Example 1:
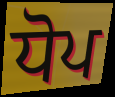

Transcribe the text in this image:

ਧੋਪ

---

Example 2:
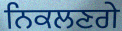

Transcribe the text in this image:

ਨਿਕਲਣਗੇ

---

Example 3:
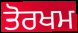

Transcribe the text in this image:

ਤੋਰਖਮ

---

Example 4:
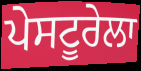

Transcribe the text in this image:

ਪੇਸਟੂਰੇਲਾ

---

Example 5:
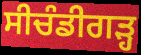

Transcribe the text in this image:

ਸੀਚੰਡੀਗੜ੍ਹ